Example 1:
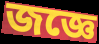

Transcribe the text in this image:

জজ্ঞে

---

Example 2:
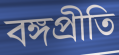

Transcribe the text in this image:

বঙ্গপ্রীতি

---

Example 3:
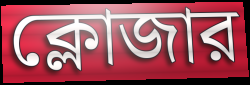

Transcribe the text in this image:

ক্লোজার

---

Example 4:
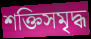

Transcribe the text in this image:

শক্তিসমৃদ্ধ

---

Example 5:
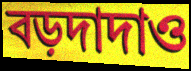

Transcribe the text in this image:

বড়দাদাও